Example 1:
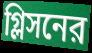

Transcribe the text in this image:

গ্লিসনের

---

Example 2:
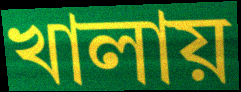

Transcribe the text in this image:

খালায়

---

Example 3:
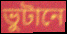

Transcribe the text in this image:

ভুটানে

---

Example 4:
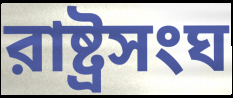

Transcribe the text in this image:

রাষ্ট্রসংঘ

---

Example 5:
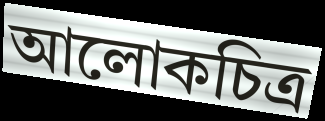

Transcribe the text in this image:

আলোকচিত্র